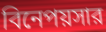
বিনেপয়সার